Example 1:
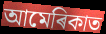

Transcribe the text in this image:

আমেৰিকাত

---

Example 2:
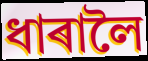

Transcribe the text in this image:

ধাৰালৈ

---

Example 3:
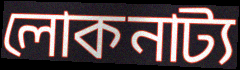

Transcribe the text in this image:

লোকনাট্য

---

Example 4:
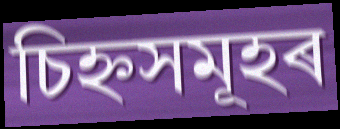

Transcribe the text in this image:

চিহ্নসমূহৰ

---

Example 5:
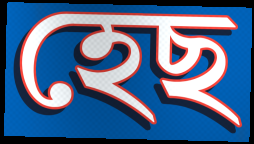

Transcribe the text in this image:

হেছ